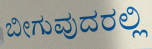
ಬೀಗುವುದರಲ್ಲಿ